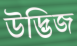
উদ্ভিজ